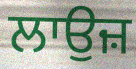
ਲਾਉਜ਼